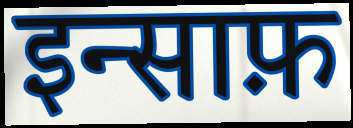
इन्साफ़